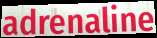
adrenaline